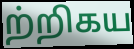
ற்றிகய